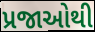
પ્રજાઓથી